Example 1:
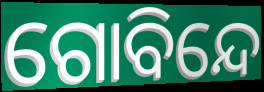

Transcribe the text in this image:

ଗୋବିନ୍ଦେ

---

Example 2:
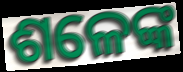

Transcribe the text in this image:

ଶଳେଙ୍କ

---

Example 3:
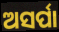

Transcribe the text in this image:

ଅସର୍ପା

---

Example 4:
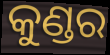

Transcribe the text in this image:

କୁଣ୍ଡର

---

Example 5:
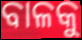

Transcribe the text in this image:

ବାଳକୁ